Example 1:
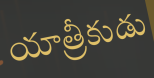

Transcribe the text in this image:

యాత్రీకుడు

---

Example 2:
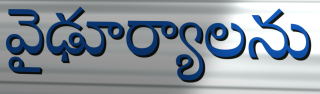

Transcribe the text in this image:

వైఢూర్యాలను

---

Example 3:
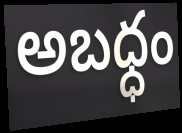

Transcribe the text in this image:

అబధ్ధం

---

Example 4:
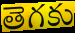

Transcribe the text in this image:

తెగకు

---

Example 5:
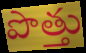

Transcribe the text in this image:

పొత్తు